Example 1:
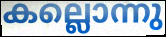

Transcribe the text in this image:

കല്ലൊന്നു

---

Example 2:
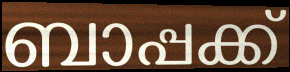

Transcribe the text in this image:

ബാപ്പക്ക്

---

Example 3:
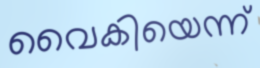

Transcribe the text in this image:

വൈകിയെന്ന്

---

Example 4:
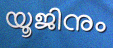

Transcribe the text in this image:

യൂജിനും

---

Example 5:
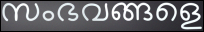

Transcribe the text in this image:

സംഭവങ്ങളെ